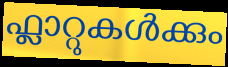
ഫ്ലാറ്റുകൾക്കും